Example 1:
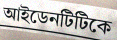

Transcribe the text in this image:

আইডেনটিটিকে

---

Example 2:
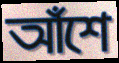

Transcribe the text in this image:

আঁশে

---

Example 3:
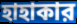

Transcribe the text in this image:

হাহাকার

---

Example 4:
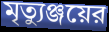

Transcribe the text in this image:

মৃত্যুঞ্জয়ের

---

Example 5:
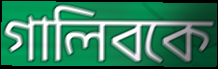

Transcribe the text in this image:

গালিবকে